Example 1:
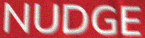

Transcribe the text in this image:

NUDGE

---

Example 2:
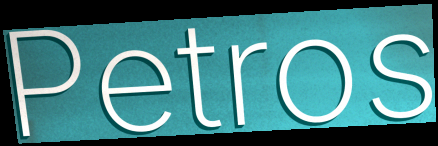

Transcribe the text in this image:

Petros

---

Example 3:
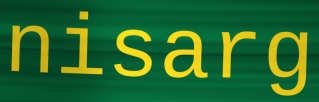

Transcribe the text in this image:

nisarg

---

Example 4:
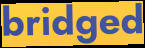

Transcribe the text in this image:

bridged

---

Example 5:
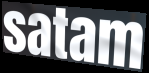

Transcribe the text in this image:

satam